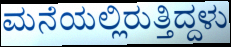
ಮನೆಯಲ್ಲಿರುತ್ತಿದ್ದಳು